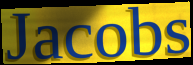
Jacobs